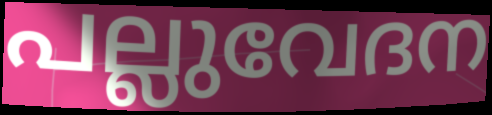
പല്ലുവേദന